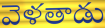
వెళతాడు